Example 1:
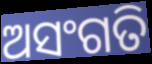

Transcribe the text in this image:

ଅସଂଗତି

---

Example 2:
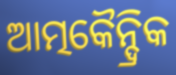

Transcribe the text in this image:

ଆତ୍ମକୈନ୍ଦ୍ରିକ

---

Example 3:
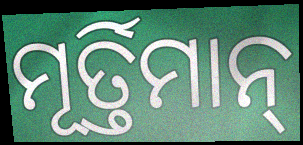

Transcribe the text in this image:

ମୂର୍ତ୍ତିମାନ୍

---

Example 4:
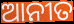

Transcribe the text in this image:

ଆନୀତ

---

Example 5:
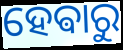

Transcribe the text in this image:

ହେଵାରୁ